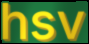
hsv